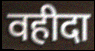
वहीदा